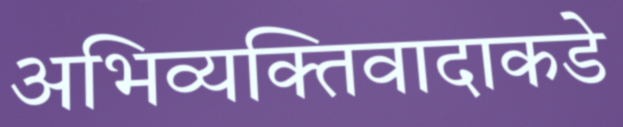
अभिव्यक्तिवादाकडे